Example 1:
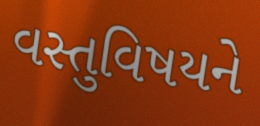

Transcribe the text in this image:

વસ્તુવિષયને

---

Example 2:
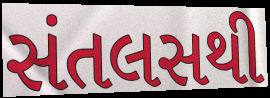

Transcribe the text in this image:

સંતલસથી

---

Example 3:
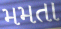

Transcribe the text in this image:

મમતા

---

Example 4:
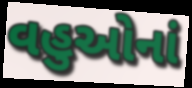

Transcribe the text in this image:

વહુઓનાં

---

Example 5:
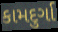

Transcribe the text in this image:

કામદુર્ગા